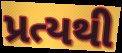
પ્રત્યથી